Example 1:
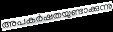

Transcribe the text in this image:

അപകർഷതയുണ്ടാക്കുന്നു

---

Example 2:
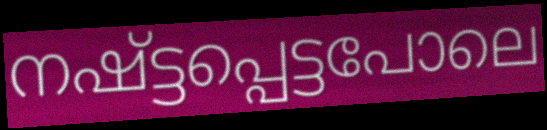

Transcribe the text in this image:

നഷ്ട്ടപ്പെട്ടപോലെ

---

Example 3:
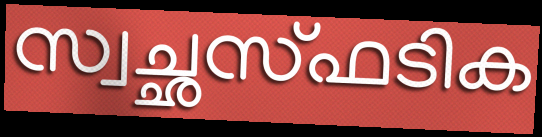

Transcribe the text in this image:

സ്വച്ഛസ്ഫടിക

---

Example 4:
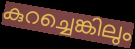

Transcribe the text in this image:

കുറച്ചെങ്കിലും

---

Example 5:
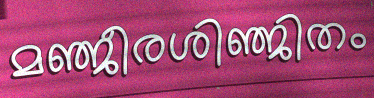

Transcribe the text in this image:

മഞ്ജീരശിഞ്ജിതം